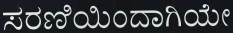
ಸರಣಿಯಿಂದಾಗಿಯೇ